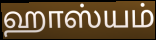
ஹாஸ்யம்